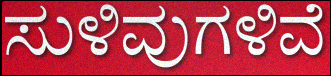
ಸುಳಿವುಗಳಿವೆ